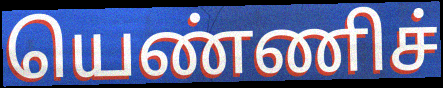
யெண்ணிச்